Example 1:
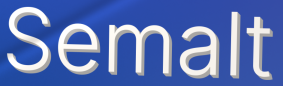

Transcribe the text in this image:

Semalt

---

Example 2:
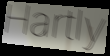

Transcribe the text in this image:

Hartly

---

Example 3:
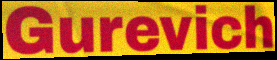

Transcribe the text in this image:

Gurevich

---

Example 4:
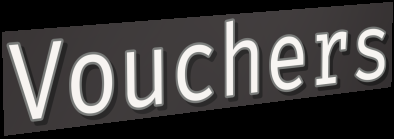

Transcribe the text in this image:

Vouchers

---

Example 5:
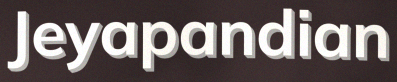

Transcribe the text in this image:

Jeyapandian